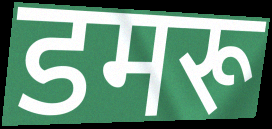
डमरू